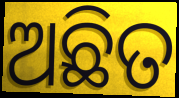
ଅଛିତ